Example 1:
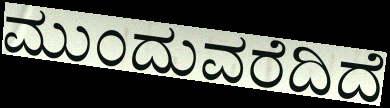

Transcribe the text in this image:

ಮುಂದುವರೆದಿದೆ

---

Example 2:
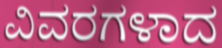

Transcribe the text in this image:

ವಿವರಗಳಾದ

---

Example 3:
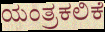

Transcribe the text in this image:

ಯಂತ್ರಕಲಿಕೆ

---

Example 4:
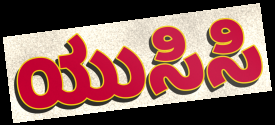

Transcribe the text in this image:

ಯುಸಿಸಿ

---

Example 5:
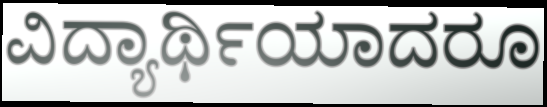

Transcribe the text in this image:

ವಿದ್ಯಾರ್ಥಿಯಾದರೂ